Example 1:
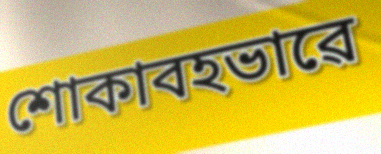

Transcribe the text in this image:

শোকাবহভাৱে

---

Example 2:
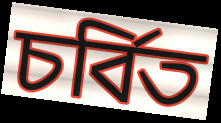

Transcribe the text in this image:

চৰ্বিত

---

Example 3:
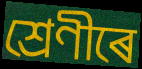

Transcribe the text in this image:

শ্ৰেণীৰে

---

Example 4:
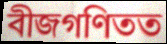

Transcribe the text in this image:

বীজগণিতত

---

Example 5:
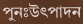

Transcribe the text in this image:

পুনঃউৎপাদন